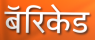
बॅरिकेड